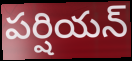
పర్షియన్